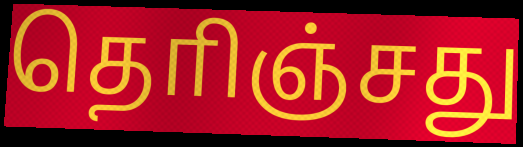
தெரிஞ்சது